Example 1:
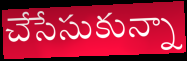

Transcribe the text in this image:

చేసేసుకున్నా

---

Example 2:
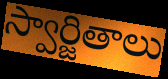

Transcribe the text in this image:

స్వార్జితాలు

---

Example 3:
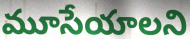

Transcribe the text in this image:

మూసేయాలని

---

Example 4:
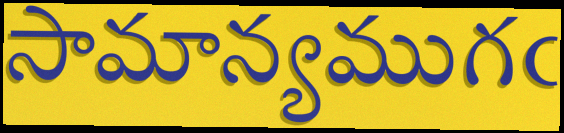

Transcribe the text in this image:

సామాన్యముగఁ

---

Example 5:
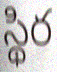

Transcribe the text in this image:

స్థిర